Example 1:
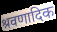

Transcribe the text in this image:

श्रवणादिक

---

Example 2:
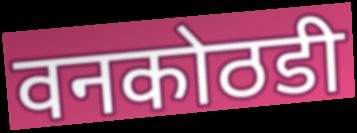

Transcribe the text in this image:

वनकोठडी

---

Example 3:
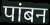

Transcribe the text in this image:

पांबन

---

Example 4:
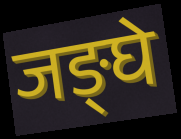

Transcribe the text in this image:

जङ्घे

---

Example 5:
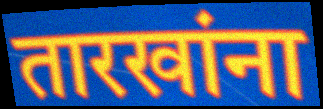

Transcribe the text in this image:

तारखांना